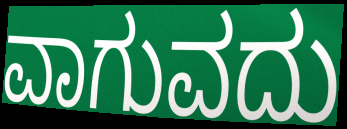
ವಾಗುವದು